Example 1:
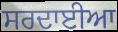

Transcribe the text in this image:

ਸਰਦਾਈਆ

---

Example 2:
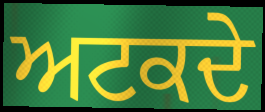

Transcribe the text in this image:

ਅਟਕਦੇ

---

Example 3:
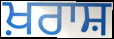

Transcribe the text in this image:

ਖ਼ਰਾਸ਼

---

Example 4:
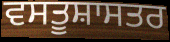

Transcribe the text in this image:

ਵਸਤੂਸ਼ਾਸਤਰ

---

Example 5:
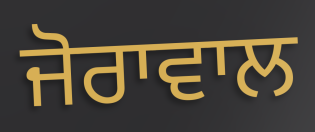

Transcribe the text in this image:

ਜੋਰਾਵਾਲ